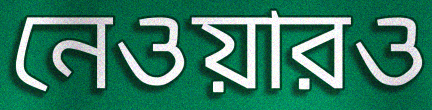
নেওয়ারও